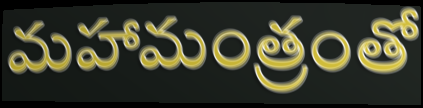
మహామంత్రంతో